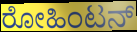
ರೋಹಿಂಟನ್